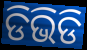
ଡିଭିଡି